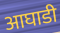
आघाडी